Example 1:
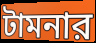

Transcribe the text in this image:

টামনার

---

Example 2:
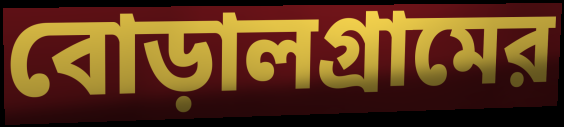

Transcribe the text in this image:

বোড়ালগ্রামের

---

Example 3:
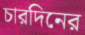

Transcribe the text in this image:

চারদিনের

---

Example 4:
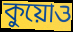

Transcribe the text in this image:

কুয়োও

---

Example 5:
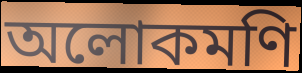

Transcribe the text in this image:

অলোকমণি